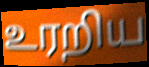
உரறிய